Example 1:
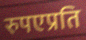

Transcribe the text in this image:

रुपएप्रति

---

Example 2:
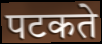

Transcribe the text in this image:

पटकते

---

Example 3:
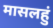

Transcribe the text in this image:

मासलहुं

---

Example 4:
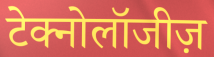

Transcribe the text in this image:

टेक्नोलॉजीज़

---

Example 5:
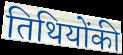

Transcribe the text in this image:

तिथियोंकी